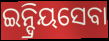
ଇନ୍ଦ୍ରିୟସେବା